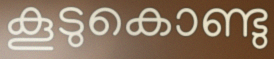
കൂടുകൊണ്ടു